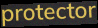
protector